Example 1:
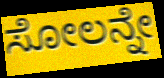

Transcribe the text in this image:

ಸೋಲನ್ನೇ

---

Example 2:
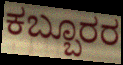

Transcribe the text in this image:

ಕಬ್ಬೂರರ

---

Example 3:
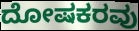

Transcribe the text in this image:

ದೋಷಕರವು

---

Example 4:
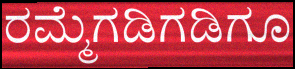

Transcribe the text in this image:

ರಮ್ಮೆಗಡಿಗಡಿಗೂ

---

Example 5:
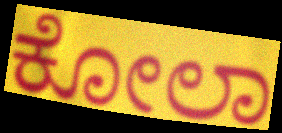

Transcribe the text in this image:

ಕೋಲಾ